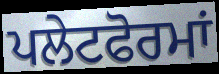
ਪਲੇਟਫੋਰਮਾਂ